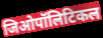
जिओपॉलिटिकल